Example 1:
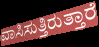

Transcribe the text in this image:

ವಾಸಿಸುತ್ತಿರುತ್ತಾರೆ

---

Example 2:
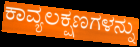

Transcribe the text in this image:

ಕಾವ್ಯಲಕ್ಷಣಗಳನ್ನು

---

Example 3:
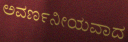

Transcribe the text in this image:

ಅವರ್ಣನೀಯವಾದ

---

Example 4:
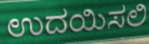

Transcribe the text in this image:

ಉದಯಿಸಲಿ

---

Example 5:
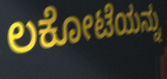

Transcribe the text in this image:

ಲಕೋಟೆಯನ್ನು